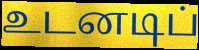
உடனடிப்